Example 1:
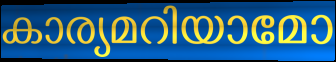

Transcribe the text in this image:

കാര്യമറിയാമോ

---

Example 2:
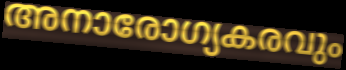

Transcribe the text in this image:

അനാരോഗ്യകരവും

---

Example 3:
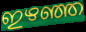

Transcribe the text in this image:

ഇഴഞ്ഞ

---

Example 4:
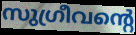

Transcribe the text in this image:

സുഗ്രീവന്റെ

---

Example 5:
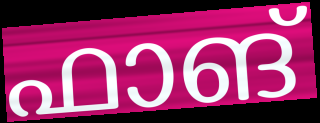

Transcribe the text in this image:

ഫാങ്